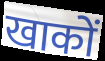
खाकों